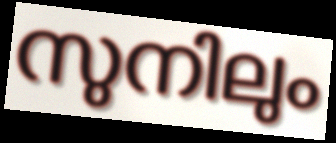
സുനിലും